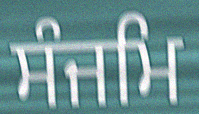
ਸੰਜਮਿ